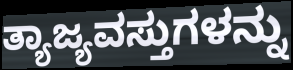
ತ್ಯಾಜ್ಯವಸ್ತುಗಳನ್ನು